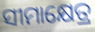
ସୀମାକ୍ଷେତ୍ର